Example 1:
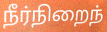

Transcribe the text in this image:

நீர்நிறைந்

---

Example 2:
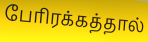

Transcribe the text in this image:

பேரிரக்கத்தால்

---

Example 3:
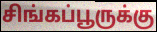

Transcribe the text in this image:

சிங்கப்பூருக்கு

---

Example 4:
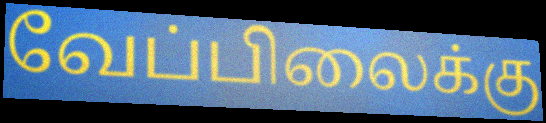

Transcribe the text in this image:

வேப்பிலைக்கு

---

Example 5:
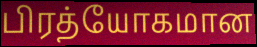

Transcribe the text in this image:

பிரத்யோகமான